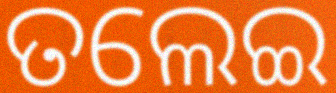
ତଲେଇ